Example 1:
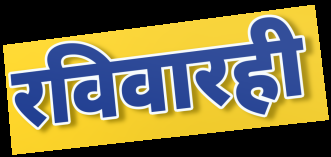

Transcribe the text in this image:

रविवारही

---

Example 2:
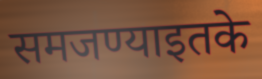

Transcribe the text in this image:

समजण्याइतके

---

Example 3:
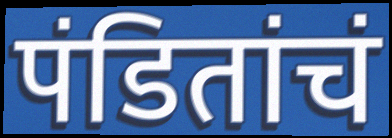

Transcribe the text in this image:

पंडितांचं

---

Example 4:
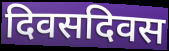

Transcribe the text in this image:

दिवसदिवस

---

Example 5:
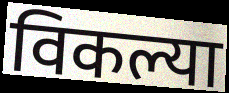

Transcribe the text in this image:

विकल्या